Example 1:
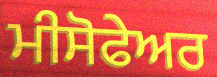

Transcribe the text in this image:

ਮੀਸੋਫੇਅਰ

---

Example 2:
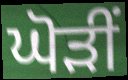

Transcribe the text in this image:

ਘੋੜੀਂ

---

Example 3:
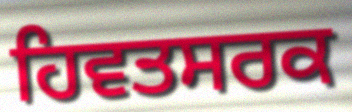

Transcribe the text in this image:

ਹਿਵਤਸਰਕ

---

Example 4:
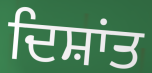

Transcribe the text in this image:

ਦਿਸ਼ਾਂਤ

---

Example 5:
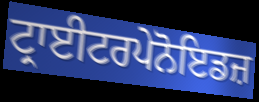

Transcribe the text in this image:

ਟ੍ਰਾਈਟਰਪੇਨੋਇਡਜ਼